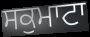
ਸਕੁਮਾਟਾ